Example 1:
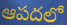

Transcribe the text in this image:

ఆపదలో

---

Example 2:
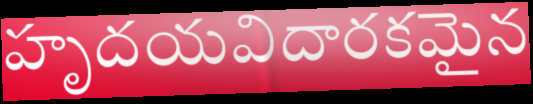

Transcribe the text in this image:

హృదయవిదారకమైన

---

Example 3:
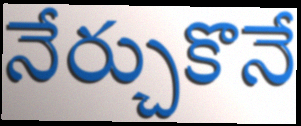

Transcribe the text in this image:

నేర్చుకొనే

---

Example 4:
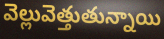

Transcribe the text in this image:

వెల్లువెత్తుతున్నాయి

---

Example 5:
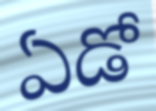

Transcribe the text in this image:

ఏడో